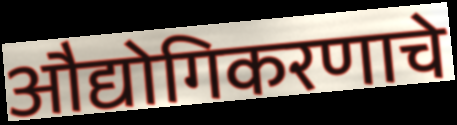
औद्योगिकरणाचे